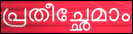
പ്രതീച്ഛേമാം